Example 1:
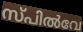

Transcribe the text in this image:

സ്പിൽവേ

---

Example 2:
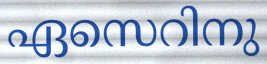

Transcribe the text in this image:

ഏസെറിനു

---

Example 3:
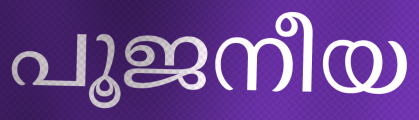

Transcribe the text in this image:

പൂജനീയ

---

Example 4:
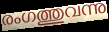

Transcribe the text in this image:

രംഗത്തുവന്നു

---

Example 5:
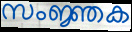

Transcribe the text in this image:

സംജ്ഞക